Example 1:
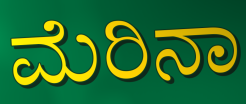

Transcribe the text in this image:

ಮೆರಿನಾ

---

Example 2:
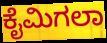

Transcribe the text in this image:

ಕೈಮಿಗಲಾ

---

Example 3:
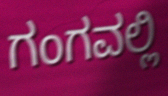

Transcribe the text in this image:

ಗಂಗವಲ್ಲಿ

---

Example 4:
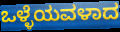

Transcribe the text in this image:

ಒಳ್ಳೆಯವಳಾದ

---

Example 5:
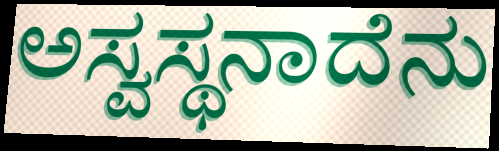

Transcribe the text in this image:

ಅಸ್ವಸ್ಥನಾದೆನು